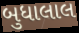
બુધાલાલ